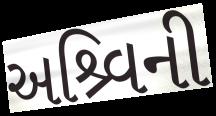
અશ્ર્વિની